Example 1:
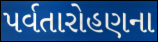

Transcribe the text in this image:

પર્વતારોહણના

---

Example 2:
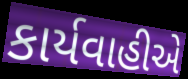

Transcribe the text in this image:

કાર્યવાહીએ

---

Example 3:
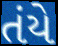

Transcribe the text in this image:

તંયે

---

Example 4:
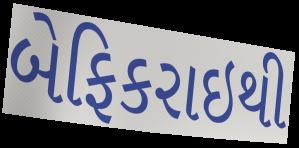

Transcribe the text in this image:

બેફિકરાઇથી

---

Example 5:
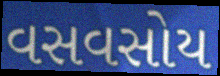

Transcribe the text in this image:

વસવસોય